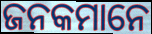
ଜନକମାନେ